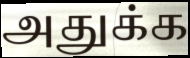
அதுக்க